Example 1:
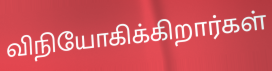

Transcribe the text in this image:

விநியோகிக்கிறார்கள்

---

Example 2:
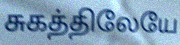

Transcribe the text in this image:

சுகத்திலேயே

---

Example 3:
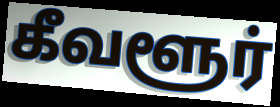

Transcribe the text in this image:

கீவளூர்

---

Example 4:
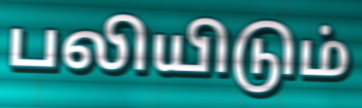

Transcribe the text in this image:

பலியிடும்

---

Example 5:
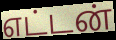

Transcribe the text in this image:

எட்டன்